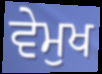
ਵੇਮੁਖ